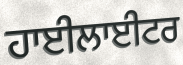
ਹਾਈਲਾਈਟਰ